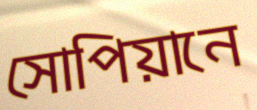
সোপিয়ানে